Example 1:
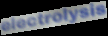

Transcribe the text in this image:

electrolysis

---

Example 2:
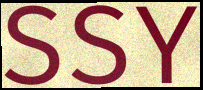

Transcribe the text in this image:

SSY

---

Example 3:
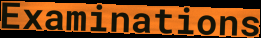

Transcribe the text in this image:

Examinations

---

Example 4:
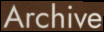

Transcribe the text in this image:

Archive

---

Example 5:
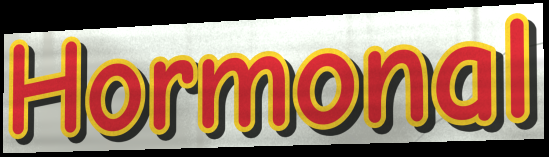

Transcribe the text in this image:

Hormonal